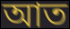
আত